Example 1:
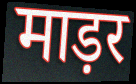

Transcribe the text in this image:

माड़र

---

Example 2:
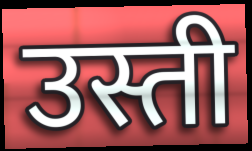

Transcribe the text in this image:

उस्ती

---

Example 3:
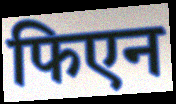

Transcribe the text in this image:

फिएन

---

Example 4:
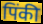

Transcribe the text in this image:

पिंकी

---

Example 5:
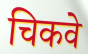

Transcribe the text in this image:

चिकवे